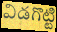
విడగొట్టి